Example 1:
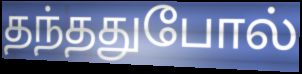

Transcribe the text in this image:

தந்ததுபோல்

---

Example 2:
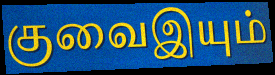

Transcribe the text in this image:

குவைஇயும்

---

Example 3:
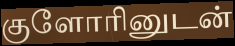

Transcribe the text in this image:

குளோரினுடன்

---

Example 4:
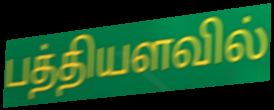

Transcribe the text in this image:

பத்தியளவில்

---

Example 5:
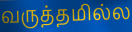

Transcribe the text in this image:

வருத்தமில்ல